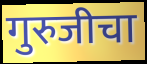
गुरुजीचा